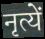
नृत्यें